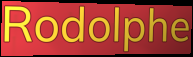
Rodolphe